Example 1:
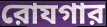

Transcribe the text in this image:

রোযগার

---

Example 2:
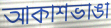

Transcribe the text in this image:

আকাশভাঙা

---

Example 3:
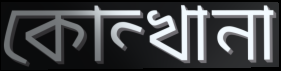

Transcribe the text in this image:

কোন্খানা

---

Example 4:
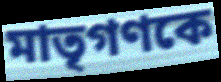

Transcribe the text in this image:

মাতৃগণকে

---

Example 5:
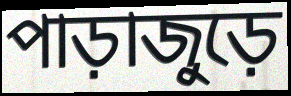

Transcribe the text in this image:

পাড়াজুড়ে